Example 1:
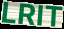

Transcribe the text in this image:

LRIT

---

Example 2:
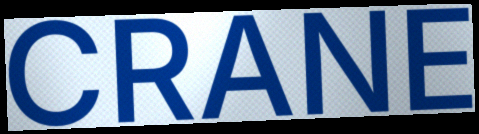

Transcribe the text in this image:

CRANE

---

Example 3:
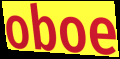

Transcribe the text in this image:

oboe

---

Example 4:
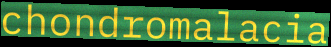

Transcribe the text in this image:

chondromalacia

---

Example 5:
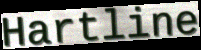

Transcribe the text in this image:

Hartline